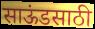
साऊंडसाठी